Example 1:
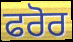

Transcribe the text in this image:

ਫਰੋਰ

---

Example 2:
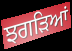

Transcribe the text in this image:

ਝਗੜਿਆਂ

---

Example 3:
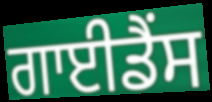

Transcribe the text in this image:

ਗਾਈਡੈਂਸ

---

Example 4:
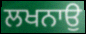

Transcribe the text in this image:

ਲਖਨਾਉ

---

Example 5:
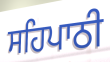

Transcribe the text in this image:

ਸਹਿਪਾਠੀ